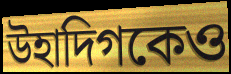
উহাদিগকেও